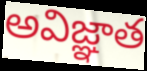
అవిజ్ఞాత